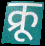
क्रू